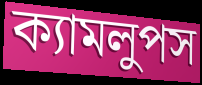
ক্যামলুপস